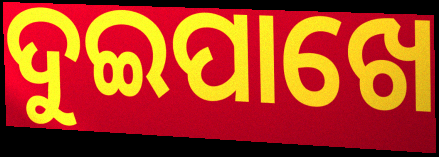
ଦୁଇପାଖେ